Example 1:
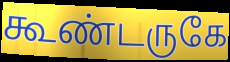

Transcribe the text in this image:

கூண்டருகே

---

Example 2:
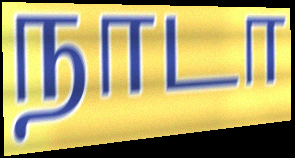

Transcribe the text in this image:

நாடா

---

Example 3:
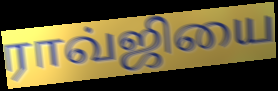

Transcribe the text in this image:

ராவ்ஜியை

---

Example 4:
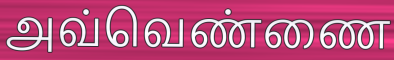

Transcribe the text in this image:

அவ்வெண்ணை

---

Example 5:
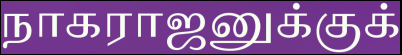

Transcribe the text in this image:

நாகராஜனுக்குக்